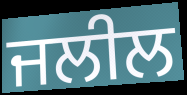
ਜਲੀਲ